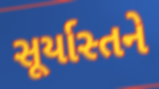
સૂર્યાસ્તને